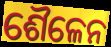
ଶୈଳେନ